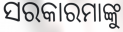
ସରକାରମାଙ୍କୁ